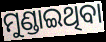
ମୁଣ୍ଡାଇଥିବା